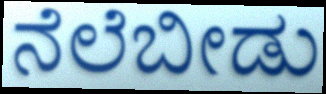
ನೆಲೆಬೀಡು